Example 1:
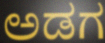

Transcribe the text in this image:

ಅಡಗ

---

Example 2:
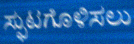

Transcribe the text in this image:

ಸ್ಫುಟಗೊಳಿಸಲು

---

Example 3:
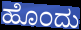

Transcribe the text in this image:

ಹೊಂದು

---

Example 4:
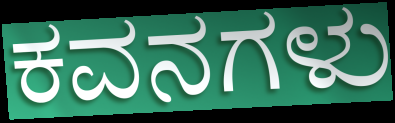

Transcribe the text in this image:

ಕವನಗಳು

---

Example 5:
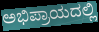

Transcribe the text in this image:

ಅಭಿಪ್ರಾಯದಲ್ಲಿ